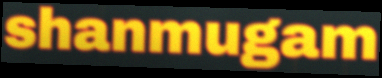
shanmugam